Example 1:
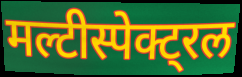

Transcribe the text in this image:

मल्टीस्पेक्ट्रल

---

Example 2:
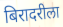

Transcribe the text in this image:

बिरादरीला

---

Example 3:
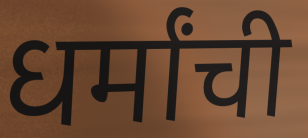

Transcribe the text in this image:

धर्मांची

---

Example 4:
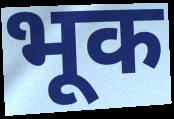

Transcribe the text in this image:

भूक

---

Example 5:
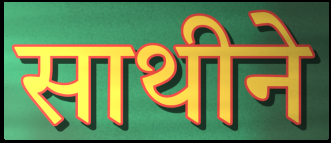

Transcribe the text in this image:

साथीने